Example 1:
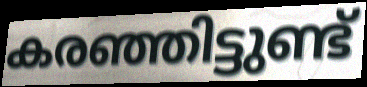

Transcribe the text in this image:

കരഞ്ഞിട്ടുണ്ട്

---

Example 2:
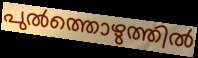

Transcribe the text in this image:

പുൽത്തൊഴുത്തിൽ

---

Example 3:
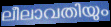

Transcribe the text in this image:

ലീലാവതിയും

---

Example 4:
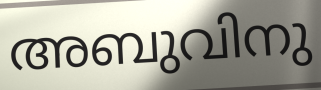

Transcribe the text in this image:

അബുവിനു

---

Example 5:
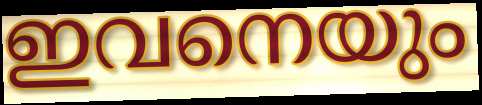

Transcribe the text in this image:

ഇവനെയും